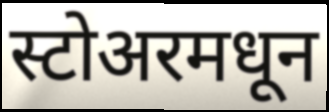
स्टोअरमधून